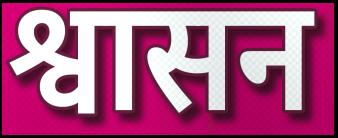
श्वासन